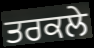
ਤਰਕਲੇ